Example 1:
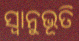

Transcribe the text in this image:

ସ୍ଵାନୁଭୂତି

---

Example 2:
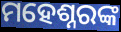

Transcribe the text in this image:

ମହେଶ୍ନରଙ୍କ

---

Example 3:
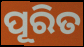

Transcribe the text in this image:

ପୂରିତ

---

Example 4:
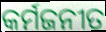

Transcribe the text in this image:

କର୍ମଜନୀତ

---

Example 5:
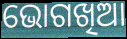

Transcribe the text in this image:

ଭୋଗଖିଆ